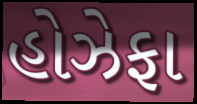
હોઝેફા